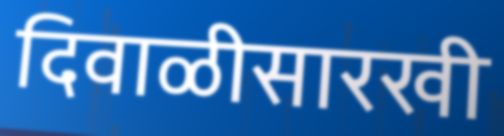
दिवाळीसारखी